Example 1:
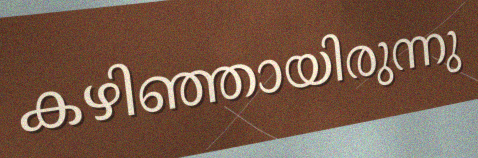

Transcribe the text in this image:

കഴിഞ്ഞായിരുന്നു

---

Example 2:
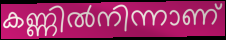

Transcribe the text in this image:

കണ്ണിൽനിന്നാണ്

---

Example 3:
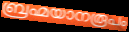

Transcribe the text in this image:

ബ്രഹ്മയാനരൂപം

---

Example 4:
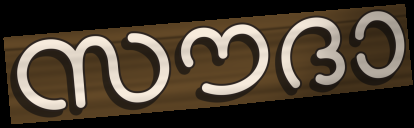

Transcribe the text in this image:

സൗദാ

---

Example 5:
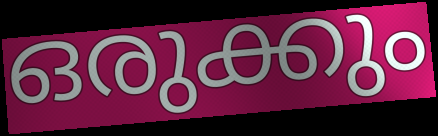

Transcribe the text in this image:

ഒരുക്കും